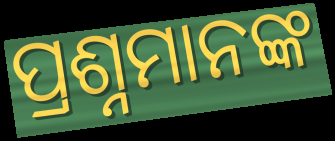
ପ୍ରଶ୍ନମାନଙ୍କ